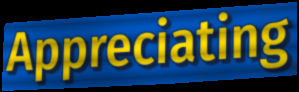
Appreciating